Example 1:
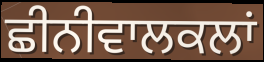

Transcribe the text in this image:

ਛੀਨੀਵਾਲਕਲਾਂ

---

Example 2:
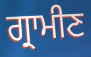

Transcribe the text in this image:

ਗ੍ਰਾਮੀਣ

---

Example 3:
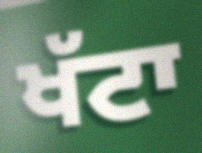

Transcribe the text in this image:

ਖੱਟਾ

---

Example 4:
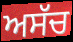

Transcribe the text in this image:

ਅਸੱਚ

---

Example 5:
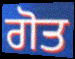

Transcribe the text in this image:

ਗੋਤ